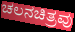
ಚಲನಚಿತ್ರವು